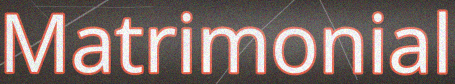
Matrimonial